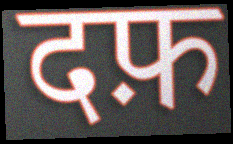
दफ़